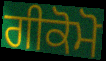
ਗੀਕੋਮੋ